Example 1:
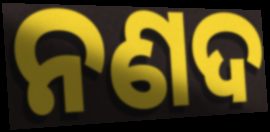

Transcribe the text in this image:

ନଣଦ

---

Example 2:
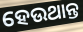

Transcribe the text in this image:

ହେଉଥାନ୍ତ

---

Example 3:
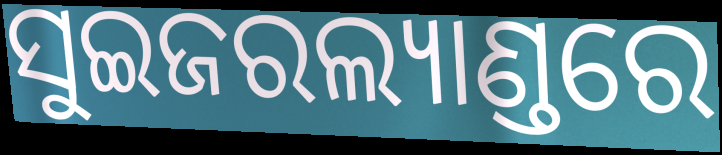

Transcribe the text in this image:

ସୁଇଜରଲ୍ୟାଣ୍ଡରେ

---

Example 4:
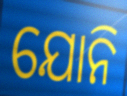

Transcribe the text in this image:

ଯୋନି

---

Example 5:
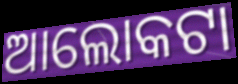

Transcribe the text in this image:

ଆଲୋକଟା